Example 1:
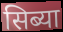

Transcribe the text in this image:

सिब्या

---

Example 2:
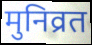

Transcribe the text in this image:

मुनिव्रत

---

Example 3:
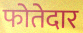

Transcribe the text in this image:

फोतेदार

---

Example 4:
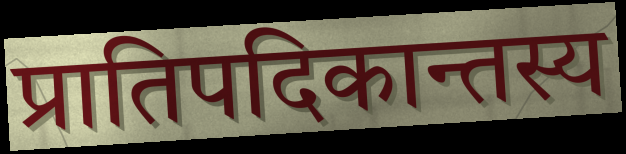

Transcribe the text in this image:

प्रातिपदिकान्तस्य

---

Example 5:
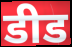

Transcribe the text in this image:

डीड